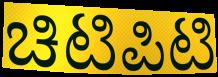
ಚಿಟಿಪಿಟಿ